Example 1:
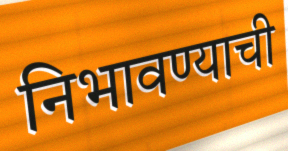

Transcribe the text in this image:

निभावण्याची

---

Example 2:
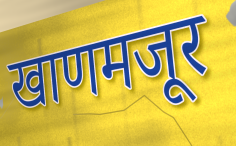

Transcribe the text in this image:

खाणमजूर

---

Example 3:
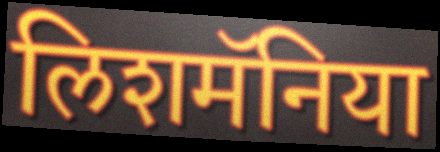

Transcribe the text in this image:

लिशमॅनिया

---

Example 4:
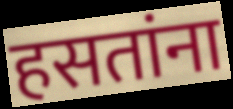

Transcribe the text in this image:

हसतांना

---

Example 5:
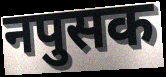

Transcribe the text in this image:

नपुसक